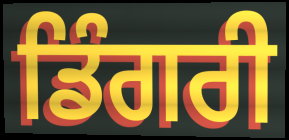
ਡਿੰਗਰੀ